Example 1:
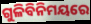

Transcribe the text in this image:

ଗୁଳିବିନିମୟରେ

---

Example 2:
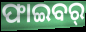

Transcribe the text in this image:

ଫାଇବର୍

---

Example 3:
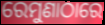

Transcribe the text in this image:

ରେମୁଣାଠାରେ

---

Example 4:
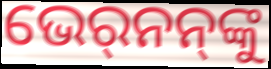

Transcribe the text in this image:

ଭେର୍‍ନନ୍‌ଙ୍କୁ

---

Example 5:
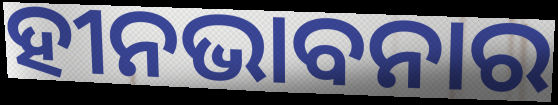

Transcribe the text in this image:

ହୀନଭାବନାର